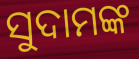
ସୁଦାମଙ୍କ